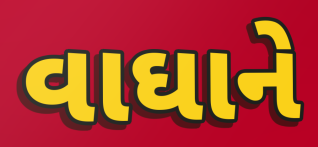
વાઘાને